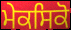
ਮੇਕਸਿਕੋ